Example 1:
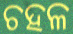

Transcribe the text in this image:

ଚହଳ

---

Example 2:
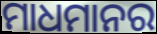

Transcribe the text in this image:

ମାଧମାନର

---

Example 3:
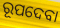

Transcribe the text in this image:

ରୂପଦେବା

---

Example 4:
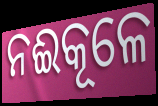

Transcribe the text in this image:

ନଈକୂଳେ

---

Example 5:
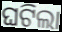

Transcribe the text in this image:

ଘଟିଲା